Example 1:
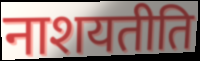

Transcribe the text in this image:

नाशयतीति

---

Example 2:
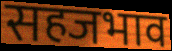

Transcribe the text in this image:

सहजभाव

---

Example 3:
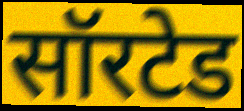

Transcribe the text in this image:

सॉरटेड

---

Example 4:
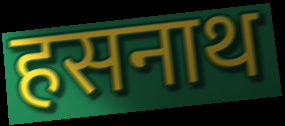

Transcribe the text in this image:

हसनाथ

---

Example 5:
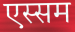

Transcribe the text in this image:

एस्सम